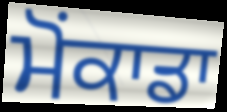
ਮੋਂਕਾਡਾ